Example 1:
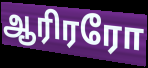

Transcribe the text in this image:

ஆரிரரோ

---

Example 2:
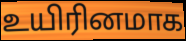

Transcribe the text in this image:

உயிரினமாக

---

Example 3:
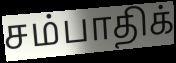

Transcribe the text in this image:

சம்பாதிக்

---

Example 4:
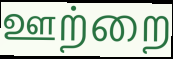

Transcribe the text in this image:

ஊற்றை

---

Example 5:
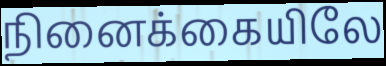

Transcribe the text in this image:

நினைக்கையிலே